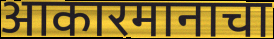
आकारमानाचा